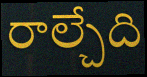
రాల్చేది